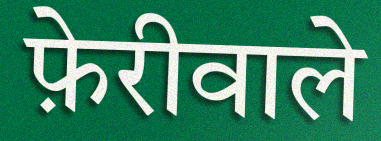
फ़ेरीवाले